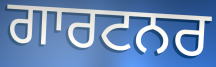
ਗਾਰਟਨਰ